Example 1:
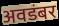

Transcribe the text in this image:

अवडंबर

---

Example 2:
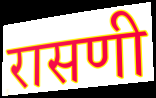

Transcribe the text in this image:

रासणी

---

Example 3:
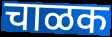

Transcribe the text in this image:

चाळक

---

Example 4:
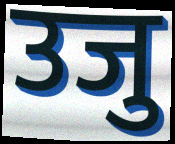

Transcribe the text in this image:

उजु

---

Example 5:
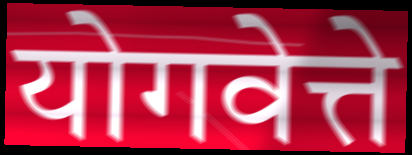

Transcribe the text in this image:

योगवेत्ते